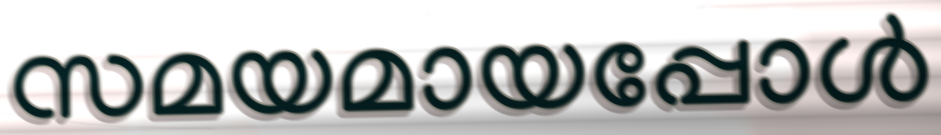
സമയമായപ്പോൾ